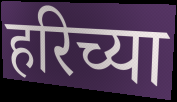
हरिच्या